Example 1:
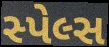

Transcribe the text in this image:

સ્પેલ્સ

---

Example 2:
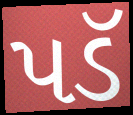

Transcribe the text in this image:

પડૅ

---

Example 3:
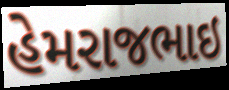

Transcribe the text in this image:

હેમરાજભાઇ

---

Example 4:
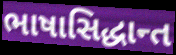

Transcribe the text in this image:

ભાષાસિદ્ધાન્ત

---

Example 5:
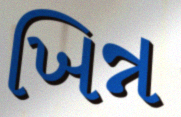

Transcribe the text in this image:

ખિન્ન